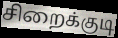
சிறைக்குடி